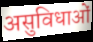
असुविधाओं